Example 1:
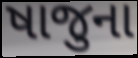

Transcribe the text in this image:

ષાજુના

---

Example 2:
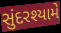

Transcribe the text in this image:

સુંદરશ્યામે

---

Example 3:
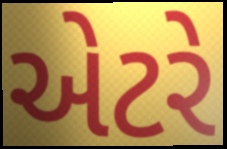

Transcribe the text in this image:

એટરે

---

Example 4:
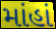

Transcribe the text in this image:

માંહાં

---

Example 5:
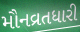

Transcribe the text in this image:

મૌનવ્રતધારી